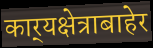
कार्यक्षेत्राबाहेर